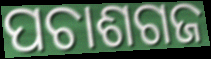
ପଚାଶଗଜ